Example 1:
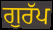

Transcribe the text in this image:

ਗੁਰੱਪ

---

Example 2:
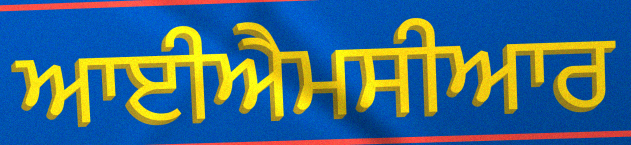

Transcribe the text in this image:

ਆਈਐਮਸੀਆਰ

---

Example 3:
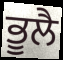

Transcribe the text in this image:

ਭੂਲੈ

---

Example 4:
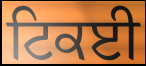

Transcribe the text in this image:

ਟਿਕਈ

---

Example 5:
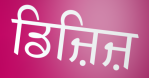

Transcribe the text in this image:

ਡਿਜ਼ਿਜ਼